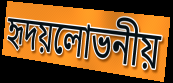
হৃদয়লোভনীয়